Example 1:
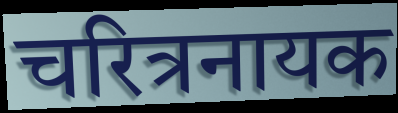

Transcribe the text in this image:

चरित्रनायक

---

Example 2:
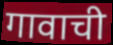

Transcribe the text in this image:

गावाची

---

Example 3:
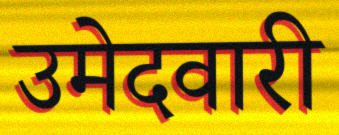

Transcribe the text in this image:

उमेदवारी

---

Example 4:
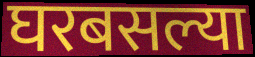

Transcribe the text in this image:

घरबसल्या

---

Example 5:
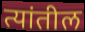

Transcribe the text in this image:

त्यांतील